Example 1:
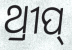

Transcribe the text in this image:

ଥ୍ରୀପ୍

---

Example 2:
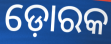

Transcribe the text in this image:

ଡ଼ୋରକ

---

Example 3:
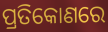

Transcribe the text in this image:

ପ୍ରତିକୋଣରେ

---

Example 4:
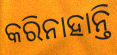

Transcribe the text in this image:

କରିନାହାନ୍ତି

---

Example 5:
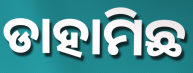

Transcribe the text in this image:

ଡାହାମିଛ